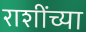
राशींच्या